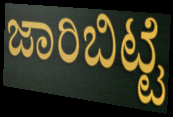
ಜಾರಿಬಿಟ್ಟೆ